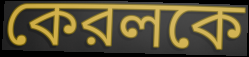
কেরলকে